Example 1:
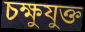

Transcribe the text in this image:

চক্ষুযুক্ত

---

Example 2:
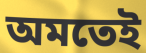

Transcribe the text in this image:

অমতেই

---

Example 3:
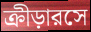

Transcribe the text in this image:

ক্রীড়ারসে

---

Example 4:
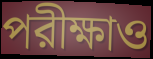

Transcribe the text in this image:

পরীক্ষাও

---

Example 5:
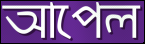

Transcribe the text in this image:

আপেল